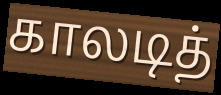
காலடித்